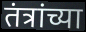
तंत्रांच्या